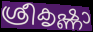
ശ്രീകൃഷ്ണാ